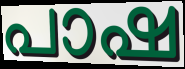
പാഷ